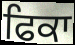
ਫਿਕਾ